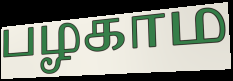
பழகாம